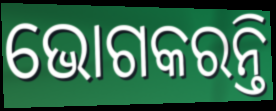
ଭୋଗକରନ୍ତି